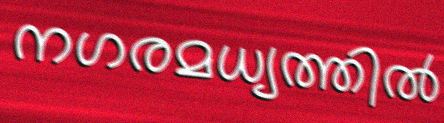
നഗരമധ്യത്തിൽ